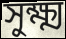
সুক্ষ্ম